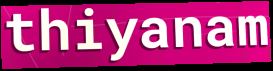
thiyanam